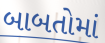
બાબતોમાં